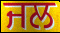
ਜਲ